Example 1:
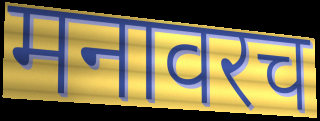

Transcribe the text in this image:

मनावरच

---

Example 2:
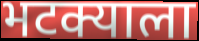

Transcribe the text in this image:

भटक्याला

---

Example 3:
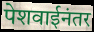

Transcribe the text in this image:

पेशवाईनंतर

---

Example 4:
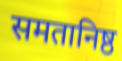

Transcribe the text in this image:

समतानिष्ठ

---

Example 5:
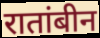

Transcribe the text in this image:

रातांबीन